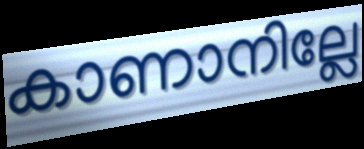
കാണാനില്ലേ